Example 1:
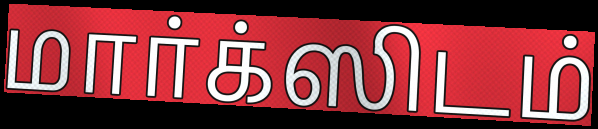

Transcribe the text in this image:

மார்க்ஸிடம்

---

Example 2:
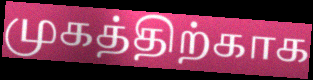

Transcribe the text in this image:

முகத்திற்காக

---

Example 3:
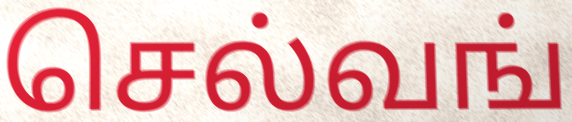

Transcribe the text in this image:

செல்வங்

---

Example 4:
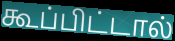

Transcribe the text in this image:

கூப்பிட்டால்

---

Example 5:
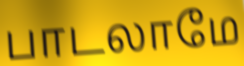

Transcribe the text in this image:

பாடலாமே